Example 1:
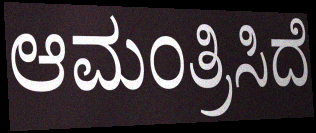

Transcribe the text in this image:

ಆಮಂತ್ರಿಸಿದೆ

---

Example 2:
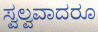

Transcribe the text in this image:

ಸ್ವಲ್ವವಾದರೂ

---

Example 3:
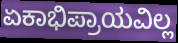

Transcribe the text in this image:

ಏಕಾಭಿಪ್ರಾಯವಿಲ್ಲ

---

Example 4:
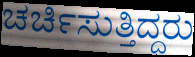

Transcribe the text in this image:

ಚರ್ಚಿಸುತ್ತಿದ್ದರು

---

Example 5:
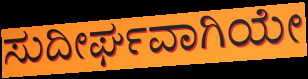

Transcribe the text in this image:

ಸುದೀರ್ಘವಾಗಿಯೇ